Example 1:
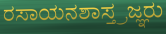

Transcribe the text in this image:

ರಸಾಯನಶಾಸ್ತ್ರಜ್ಞರು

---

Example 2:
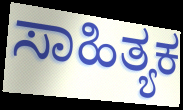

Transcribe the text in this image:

ಸಾಹಿತ್ಯಕ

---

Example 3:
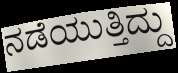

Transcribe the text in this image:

ನಡೆಯುತ್ತಿದ್ದು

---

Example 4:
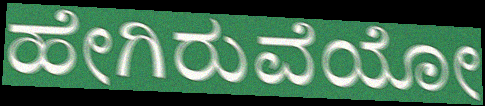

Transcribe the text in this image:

ಹೇಗಿರುವೆಯೋ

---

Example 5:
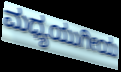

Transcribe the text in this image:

ಮಧ್ಯಯುಗೀಯ